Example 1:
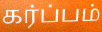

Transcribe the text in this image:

கர்ப்பம்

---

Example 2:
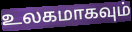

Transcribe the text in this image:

உலகமாகவும்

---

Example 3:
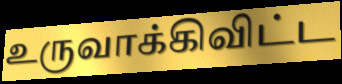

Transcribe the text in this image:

உருவாக்கிவிட்ட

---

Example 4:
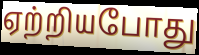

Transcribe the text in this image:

ஏற்றியபோது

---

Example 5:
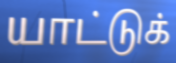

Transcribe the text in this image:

யாட்டுக்